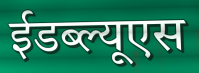
ईडब्ल्यूएस